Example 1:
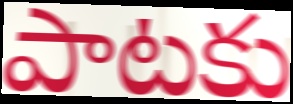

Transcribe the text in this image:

పాటకు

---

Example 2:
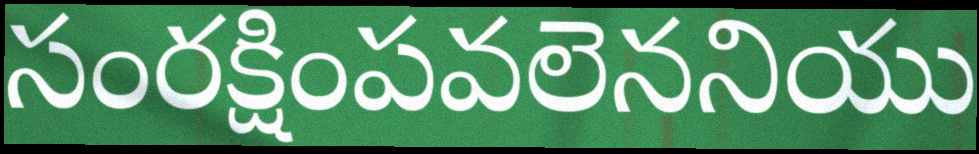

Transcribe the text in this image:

సంరక్షింపవలెననియు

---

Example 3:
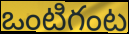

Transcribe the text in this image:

ఒంటిగంట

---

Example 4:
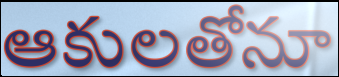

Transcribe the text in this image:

ఆకులతోనూ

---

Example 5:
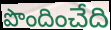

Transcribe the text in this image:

పొందించేది